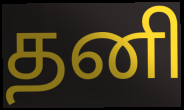
தனி